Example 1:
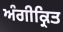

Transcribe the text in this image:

ਅੰਗੀਕ੍ਰਿਤ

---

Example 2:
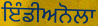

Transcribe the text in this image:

ਇੰਡੀਅਨੋਲਾ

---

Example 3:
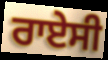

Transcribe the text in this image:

ਰਾਏਸੀ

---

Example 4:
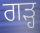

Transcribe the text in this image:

ਗੜ੍ਹ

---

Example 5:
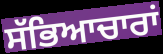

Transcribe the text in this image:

ਸੱਭਿਆਚਾਰਾਂ